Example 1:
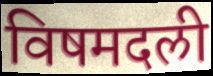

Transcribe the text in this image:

विषमदली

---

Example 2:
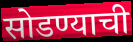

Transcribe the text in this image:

सोडण्याची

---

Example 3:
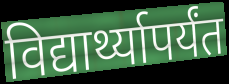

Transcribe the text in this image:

विद्यार्थ्यापर्यंत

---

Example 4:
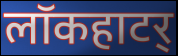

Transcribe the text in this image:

लॉकहाटर्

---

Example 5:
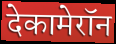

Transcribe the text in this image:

देकामेरॉन